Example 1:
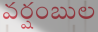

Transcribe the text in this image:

వర్షంబుల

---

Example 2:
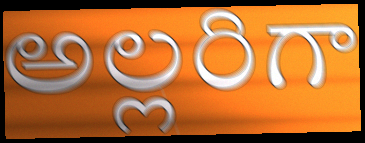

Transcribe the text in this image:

అల్లరిగా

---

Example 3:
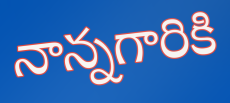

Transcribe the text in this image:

నాన్నగారికి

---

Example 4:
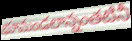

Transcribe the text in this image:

భూమండలాన్నంతటినీ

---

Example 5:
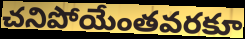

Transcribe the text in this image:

చనిపోయేంతవరకూ